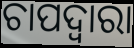
ଚାପଦ୍ବାରା